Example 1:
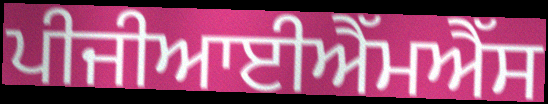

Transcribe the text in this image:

ਪੀਜੀਆਈਐੱਮਐੱਸ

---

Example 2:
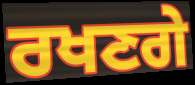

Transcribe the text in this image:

ਰਖਣਗੇ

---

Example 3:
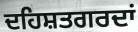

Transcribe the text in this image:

ਦਹਿਸ਼ਤਗਰਦਾਂ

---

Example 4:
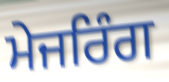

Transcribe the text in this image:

ਮੇਜਰਿੰਗ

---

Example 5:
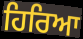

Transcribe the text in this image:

ਹਿਰਿਆ